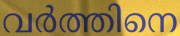
വർത്തിനെ